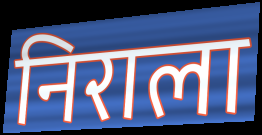
निराला